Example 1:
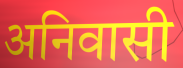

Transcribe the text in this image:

अनिवासी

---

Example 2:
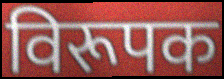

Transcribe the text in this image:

विरूपक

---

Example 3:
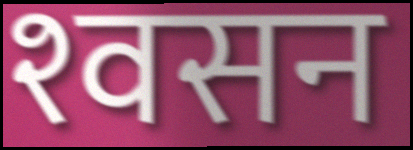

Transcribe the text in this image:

श्वसन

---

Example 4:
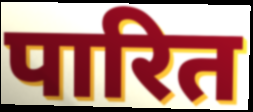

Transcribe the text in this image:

पारित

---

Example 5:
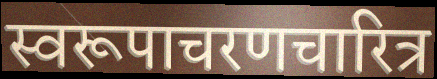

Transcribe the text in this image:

स्वरूपाचरणचारित्र